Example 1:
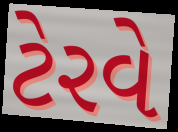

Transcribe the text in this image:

ટેરવે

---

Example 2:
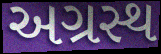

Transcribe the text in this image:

અગ્રસ્થ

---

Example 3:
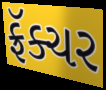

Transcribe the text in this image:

ફ્રૅક્ચર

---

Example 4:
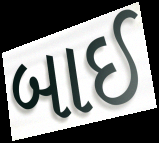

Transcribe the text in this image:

બાઈ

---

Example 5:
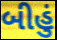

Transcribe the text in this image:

બીહું